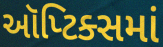
ઑપ્ટિક્સમાં